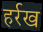
हर्रख